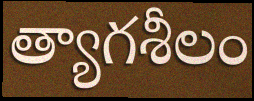
త్యాగశీలం